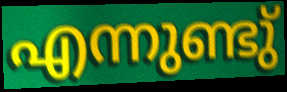
എന്നുണ്ടു്